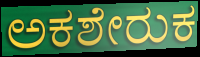
ಅಕಶೇರುಕ